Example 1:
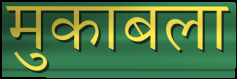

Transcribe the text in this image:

मुकाबला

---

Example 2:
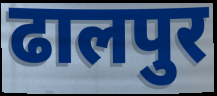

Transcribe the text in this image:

ढालपुर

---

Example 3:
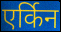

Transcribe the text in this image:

एर्किन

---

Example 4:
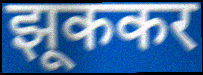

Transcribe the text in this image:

झूककर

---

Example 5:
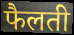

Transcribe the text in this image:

फैलती